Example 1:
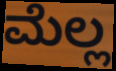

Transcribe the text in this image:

ಮೆಲ್ಲ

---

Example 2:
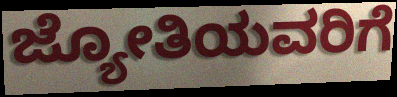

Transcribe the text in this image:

ಜ್ಯೋತಿಯವರಿಗೆ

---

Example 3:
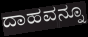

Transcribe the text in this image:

ದಾಹವನ್ನೂ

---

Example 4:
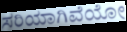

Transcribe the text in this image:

ಸರಿಯಾಗಿವೆಯೋ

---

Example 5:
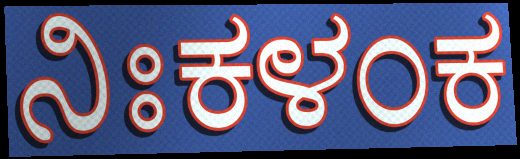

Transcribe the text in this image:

ನಿಃಕಳಂಕ